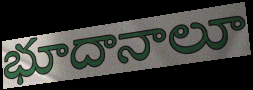
భూదానాలూ